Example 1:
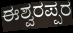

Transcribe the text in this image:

ಈಶ್ವರಪ್ಪರ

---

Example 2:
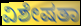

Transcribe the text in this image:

ವಿಶೇಷತಾ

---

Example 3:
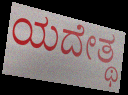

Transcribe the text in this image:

ಯದೇತ್ಥ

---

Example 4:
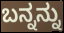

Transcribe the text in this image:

ಬನ್ನನ್ನು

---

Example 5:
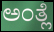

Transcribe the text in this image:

ಅಂತ್ಲೆ